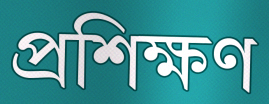
প্রশিক্ষণ